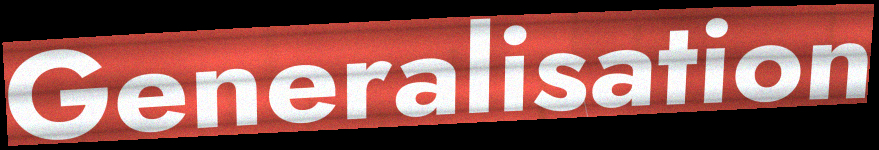
Generalisation